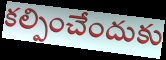
కల్పించేందుకు